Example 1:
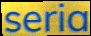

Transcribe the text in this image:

seria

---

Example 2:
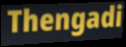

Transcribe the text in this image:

Thengadi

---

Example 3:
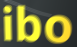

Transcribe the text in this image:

ibo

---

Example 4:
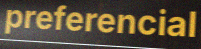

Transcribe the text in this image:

preferencial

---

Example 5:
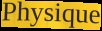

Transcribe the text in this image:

Physique